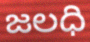
జలధి